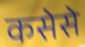
कसेसे